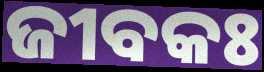
ଜୀବକଃ